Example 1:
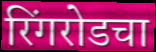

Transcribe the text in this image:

रिंगरोडचा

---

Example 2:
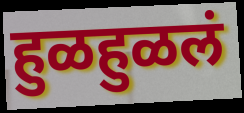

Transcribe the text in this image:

हुळहुळलं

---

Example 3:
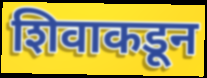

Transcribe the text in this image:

शिवाकडून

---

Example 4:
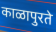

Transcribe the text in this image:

काळापुरते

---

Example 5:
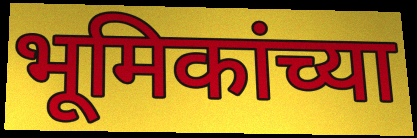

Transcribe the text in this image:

भूमिकांच्या